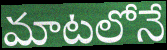
మాటలోనే